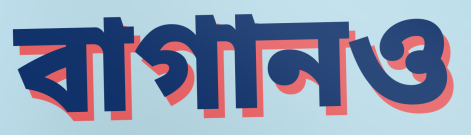
বাগানও